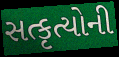
સત્કૃત્યોની